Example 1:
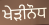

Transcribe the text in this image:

ਖੇੜੀਨੌਧ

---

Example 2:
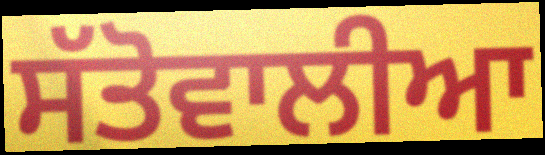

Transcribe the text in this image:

ਸੱਤੋਵਾਲੀਆ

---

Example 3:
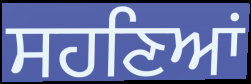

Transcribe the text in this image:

ਸਹਣਿਆਂ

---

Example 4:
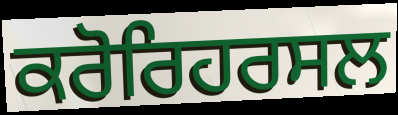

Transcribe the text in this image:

ਕਰੋਰਿਹਰਸਲ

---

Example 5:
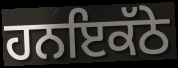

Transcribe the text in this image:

ਹਨਇਕੱਠੇ